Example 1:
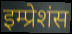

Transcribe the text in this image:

इम्प्रेशंस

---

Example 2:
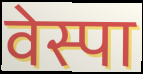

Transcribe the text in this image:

वेस्‍पा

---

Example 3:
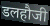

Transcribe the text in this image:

डलहौजी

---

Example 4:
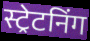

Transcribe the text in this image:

स्ट्रेटनिंग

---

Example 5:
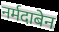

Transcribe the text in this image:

नर्मदाबेन